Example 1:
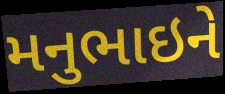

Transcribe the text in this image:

મનુભાઇને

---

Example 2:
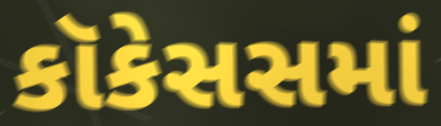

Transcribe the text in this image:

કૉકેસસમાં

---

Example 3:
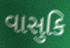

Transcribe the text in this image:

વાસુકિ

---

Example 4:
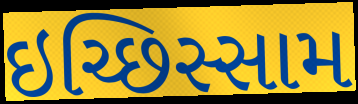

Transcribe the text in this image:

ઇચ્છિસ્સામ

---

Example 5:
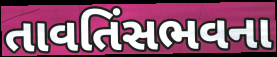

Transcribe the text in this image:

તાવતિંસભવના